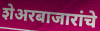
शेअरबाजारांचे